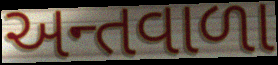
અન્તવાળા